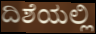
ದಿಶೆಯಲ್ಲಿ